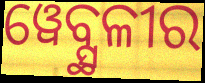
ୱେବ୍ସ୍ଥଳୀର